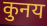
कुनय